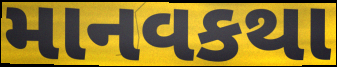
માનવકથા